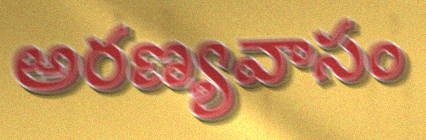
అరణ్యవాసం